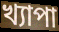
খ্যাপা